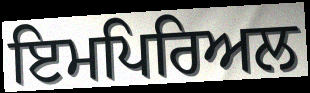
ਇਮਪਿਰਿਅਲ